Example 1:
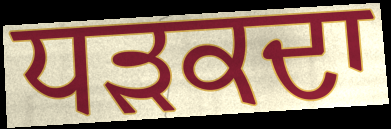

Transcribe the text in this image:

ਧੜਕਦਾ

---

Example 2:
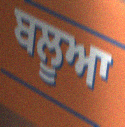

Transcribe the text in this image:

ਬਲੂਆ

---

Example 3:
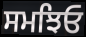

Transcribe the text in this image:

ਸਮਝਿਓ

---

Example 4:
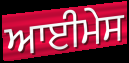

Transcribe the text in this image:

ਆਈਮੇਸ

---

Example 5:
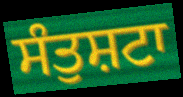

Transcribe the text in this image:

ਸੰਤੁਸ਼ਟਾ